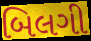
બિલગી